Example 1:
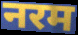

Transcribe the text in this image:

नरम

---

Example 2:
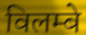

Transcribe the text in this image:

विलम्बे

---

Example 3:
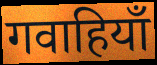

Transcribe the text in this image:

गवाहियाँ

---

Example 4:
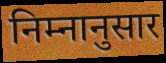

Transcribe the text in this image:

निम्‍नानुसार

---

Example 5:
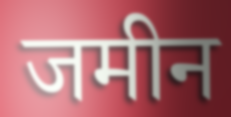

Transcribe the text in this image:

जमीन